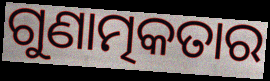
ଗୁଣାତ୍ମକତାର